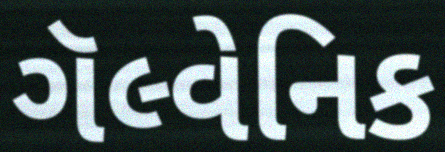
ગૅલ્વેનિક